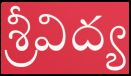
శ్రీవిద్య